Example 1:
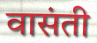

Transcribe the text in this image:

वासंती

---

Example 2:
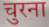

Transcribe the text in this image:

चुरना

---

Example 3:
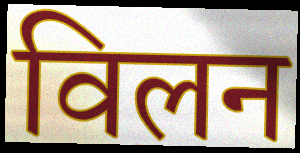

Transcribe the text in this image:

विलन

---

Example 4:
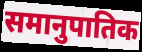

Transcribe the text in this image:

समानुपातिक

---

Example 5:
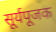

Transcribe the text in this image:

सूर्यपूजक